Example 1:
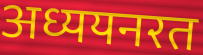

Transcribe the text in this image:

अध्ययनरत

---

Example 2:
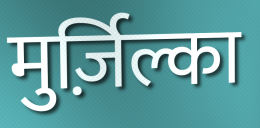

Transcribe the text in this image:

मुर्ज़िल्का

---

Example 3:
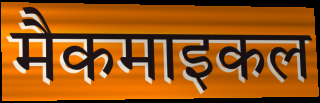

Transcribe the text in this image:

मैकमाइकल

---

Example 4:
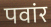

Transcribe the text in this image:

पवांर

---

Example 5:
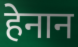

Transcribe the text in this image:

हेनान